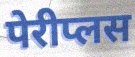
पेरीप्लस